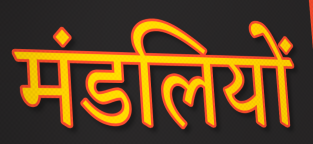
मंडलियों